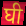
घी